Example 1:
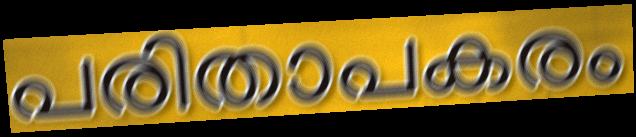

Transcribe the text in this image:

പരിതാപകരം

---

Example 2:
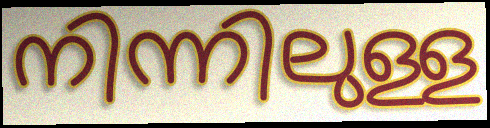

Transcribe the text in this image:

നിന്നിലുള്ള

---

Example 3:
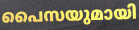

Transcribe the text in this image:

പൈസയുമായി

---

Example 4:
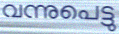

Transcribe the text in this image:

വന്നുപെട്ടു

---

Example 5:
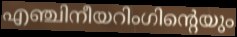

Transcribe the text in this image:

എഞ്ചിനീയറിംഗിന്റെയും